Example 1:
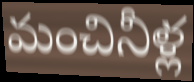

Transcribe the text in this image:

మంచినీళ్ల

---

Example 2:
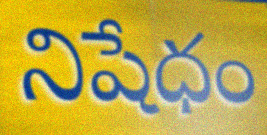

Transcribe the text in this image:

నిషేధం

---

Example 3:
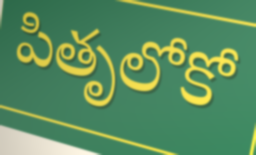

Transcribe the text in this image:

పితృలోకో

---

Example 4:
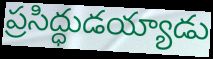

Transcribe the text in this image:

ప్రసిద్ధుడయ్యాడు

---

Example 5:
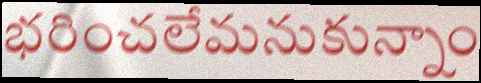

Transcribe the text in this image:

భరించలేమనుకున్నాం